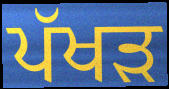
ਪੱਖੜ